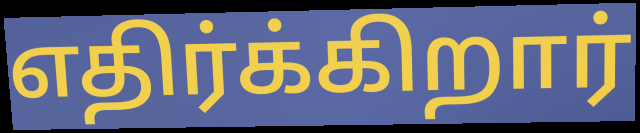
எதிர்க்கிறார்